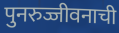
पुनरुज्जीवनाची